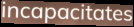
incapacitates